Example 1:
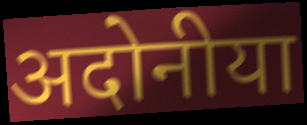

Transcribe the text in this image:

अदोनीया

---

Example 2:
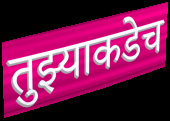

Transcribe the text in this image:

तुझ्याकडेच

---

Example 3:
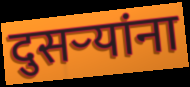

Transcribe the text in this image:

दुसऱ्यांना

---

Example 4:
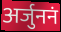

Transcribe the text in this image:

अर्जुननं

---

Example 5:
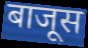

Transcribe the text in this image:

बाजूस